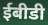
ईबीडी